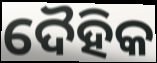
ଦୈହିକ